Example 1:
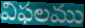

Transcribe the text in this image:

విఫలము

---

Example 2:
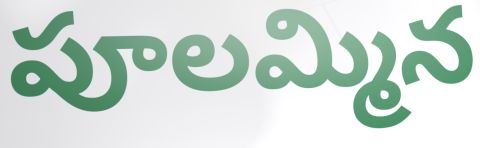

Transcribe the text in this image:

పూలమ్మిన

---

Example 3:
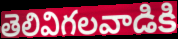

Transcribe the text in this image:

తెలివిగలవాడికి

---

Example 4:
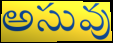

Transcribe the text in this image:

అసువు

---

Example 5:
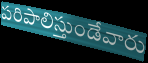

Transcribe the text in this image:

పరిపాలిస్తుండేవారు